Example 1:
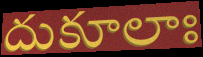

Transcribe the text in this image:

దుకూలాః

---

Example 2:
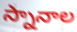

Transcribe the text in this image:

స్నానాల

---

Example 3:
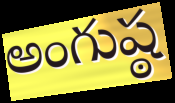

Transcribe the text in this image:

అంగుష్ఠ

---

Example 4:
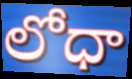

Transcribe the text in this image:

లోధా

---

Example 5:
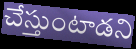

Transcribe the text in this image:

చేస్తుంటాడని